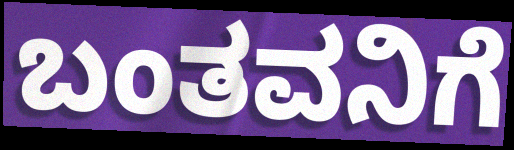
ಬಂತವನಿಗೆ